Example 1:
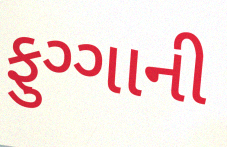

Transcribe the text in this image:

ફુગ્ગાની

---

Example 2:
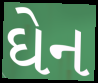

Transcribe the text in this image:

ઘેન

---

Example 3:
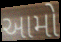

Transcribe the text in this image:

આમો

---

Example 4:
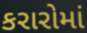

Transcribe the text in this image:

કરારોમાં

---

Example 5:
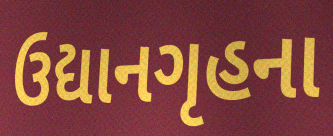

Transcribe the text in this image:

ઉદ્યાનગૃહના